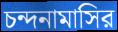
চন্দনামাসির